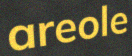
areole